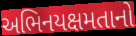
અભિનયક્ષમતાનો